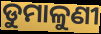
ଡୁମାଳୁଣୀ